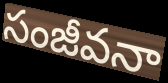
సంజీవనా